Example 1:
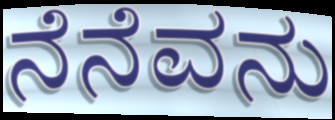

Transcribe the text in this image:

ನೆನೆವನು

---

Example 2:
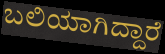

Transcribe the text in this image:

ಬಲಿಯಾಗಿದ್ದಾರೆ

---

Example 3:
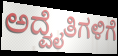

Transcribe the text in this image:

ಅದ್ವೈತಿಗಳಿಗೆ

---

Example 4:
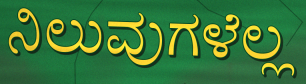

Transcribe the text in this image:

ನಿಲುವುಗಳೆಲ್ಲ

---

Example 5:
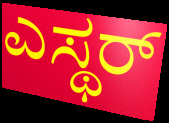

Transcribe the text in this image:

ಎಸ್ಥರ್